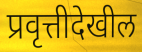
प्रवृत्तीदेखील